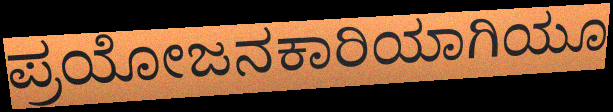
ಪ್ರಯೋಜನಕಾರಿಯಾಗಿಯೂ